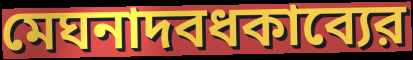
মেঘনাদবধকাব্যের